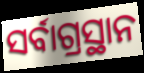
ସର୍ବାଗ୍ରସ୍ଥାନ